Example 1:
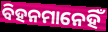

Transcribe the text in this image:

ବିହନମାନେହିଁ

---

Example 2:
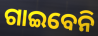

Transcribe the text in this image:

ଗାଇବେନି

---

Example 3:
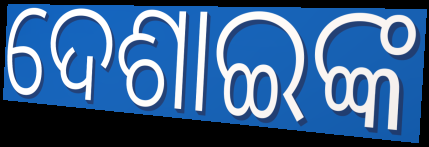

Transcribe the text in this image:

ଦେଶାଇଙ୍କ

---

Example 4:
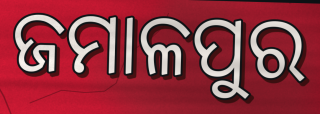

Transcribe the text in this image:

ଜମାଳପୁର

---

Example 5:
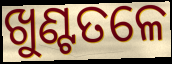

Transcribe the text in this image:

ଖୁଣ୍ଟତଳେ